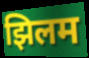
झिलम